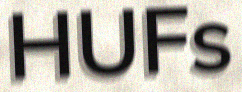
HUFs